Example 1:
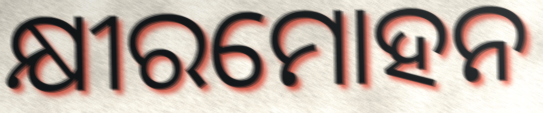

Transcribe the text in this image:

କ୍ଷୀରମୋହନ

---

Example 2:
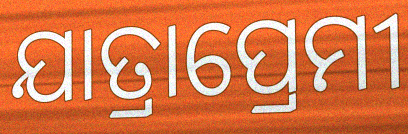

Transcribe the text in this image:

ଯାତ୍ରାପ୍ରେମୀ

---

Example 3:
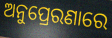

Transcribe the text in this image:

ଅନୁପ୍ରେରଣାରେ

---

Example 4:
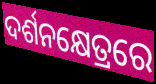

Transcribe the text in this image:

ଦର୍ଶନକ୍ଷେତ୍ରରେ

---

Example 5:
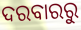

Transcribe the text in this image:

ଦରବାରରୁ